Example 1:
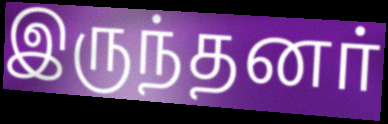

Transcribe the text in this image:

இருந்தனர்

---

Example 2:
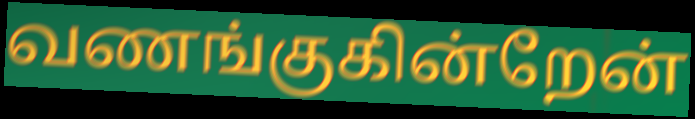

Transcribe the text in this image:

வணங்குகின்றேன்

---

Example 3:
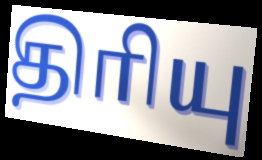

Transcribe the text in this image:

திரியு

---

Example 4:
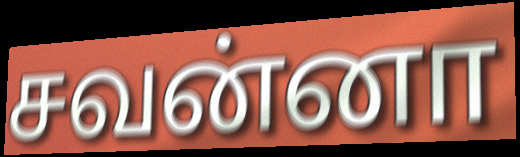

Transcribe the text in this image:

சவன்னா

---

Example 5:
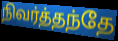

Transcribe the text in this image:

நிவர்த்தந்தே